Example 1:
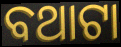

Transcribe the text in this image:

ବଥାଟା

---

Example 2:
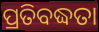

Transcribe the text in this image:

ପ୍ରତିବଦ୍ଧତା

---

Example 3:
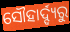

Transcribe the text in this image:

ସୌହାର୍ଦ୍ଦ୍ୟରୁ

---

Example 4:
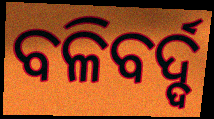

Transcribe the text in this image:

ବଳିବର୍ଦ୍ଦ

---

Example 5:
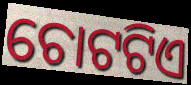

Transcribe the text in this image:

ଚୋଟଟିଏ